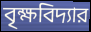
বৃক্ষবিদ্যার